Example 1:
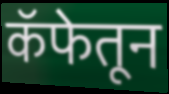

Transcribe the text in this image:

कॅफेतून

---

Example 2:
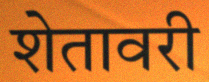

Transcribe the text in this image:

शेतावरी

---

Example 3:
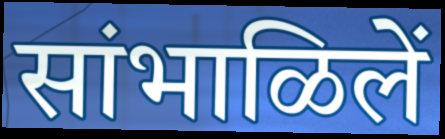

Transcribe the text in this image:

सांभाळिलें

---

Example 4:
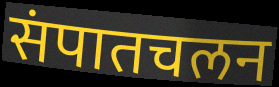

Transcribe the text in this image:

संपातचलन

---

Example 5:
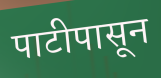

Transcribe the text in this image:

पाटीपासून